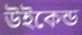
উইকেন্ড